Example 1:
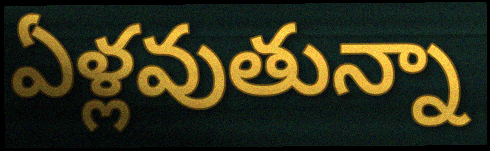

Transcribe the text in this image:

ఏళ్లవుతున్నా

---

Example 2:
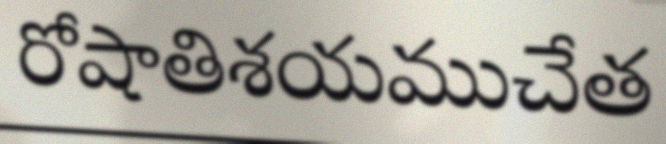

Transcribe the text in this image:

రోషాతిశయముచేత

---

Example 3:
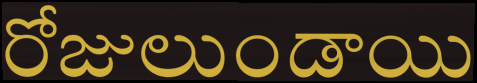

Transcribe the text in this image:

రోజులుండాయి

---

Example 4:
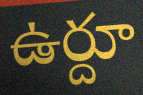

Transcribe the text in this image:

ఉర్దూ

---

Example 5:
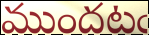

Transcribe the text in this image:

ముందటఁ